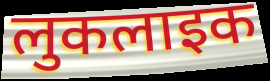
लुकलाइक